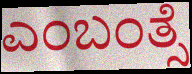
ಎಂಬಂತ್ಸೆ